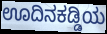
ಊದಿನಕಡ್ಡಿಯ